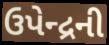
ઉપેન્દ્રની